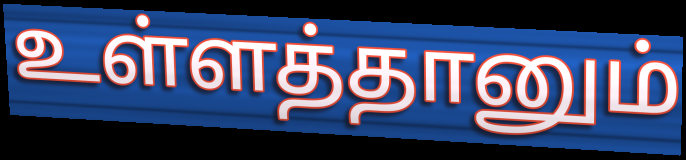
உள்ளத்தானும்